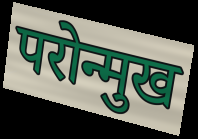
परोन्मुख